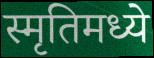
स्मृतिमध्ये